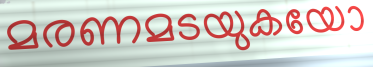
മരണമടയുകയോ